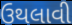
ઉથલાવી